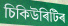
চিকিউৰিটিৰ